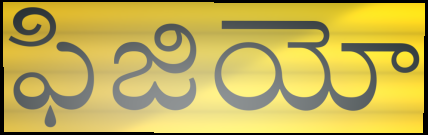
ఫిజియో